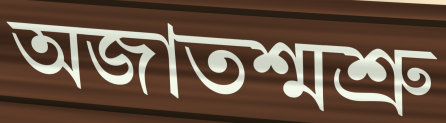
অজাতশ্মশ্রু